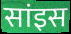
सांइस